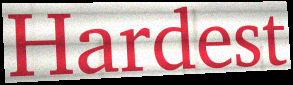
Hardest